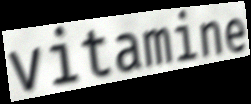
vitamine